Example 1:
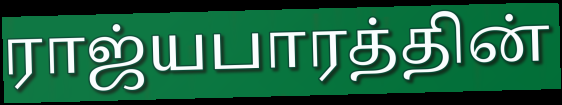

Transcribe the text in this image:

ராஜ்யபாரத்தின்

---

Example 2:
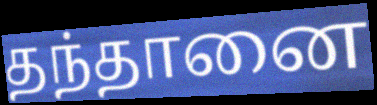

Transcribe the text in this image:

தந்தானை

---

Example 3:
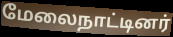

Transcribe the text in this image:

மேலைநாட்டினர்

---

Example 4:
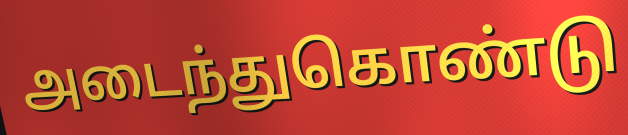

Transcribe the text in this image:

அடைந்துகொண்டு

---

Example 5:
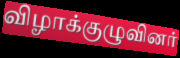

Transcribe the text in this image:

விழாக்குழுவினர்